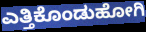
ಎತ್ತಿಕೊಂಡುಹೋಗಿ